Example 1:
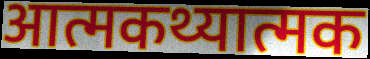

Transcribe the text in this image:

आत्मकथ्यात्मक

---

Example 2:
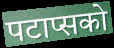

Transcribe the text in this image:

पटाप्सको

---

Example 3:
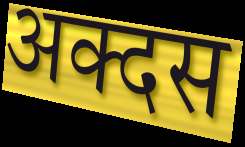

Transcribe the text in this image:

अक्दस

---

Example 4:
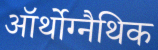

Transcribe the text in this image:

ऑर्थोग्नैथिक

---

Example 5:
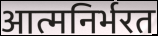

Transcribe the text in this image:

आत्मनिर्भरत